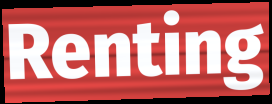
Renting